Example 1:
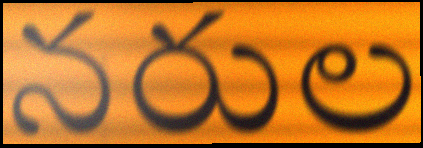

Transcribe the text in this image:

నరుల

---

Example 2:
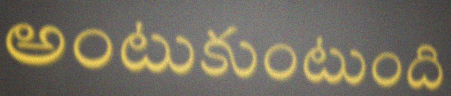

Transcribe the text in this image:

అంటుకుంటుంది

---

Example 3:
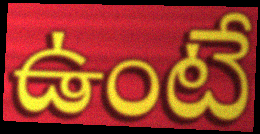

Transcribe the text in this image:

ఉంటే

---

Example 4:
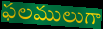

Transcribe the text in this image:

ఫలములుగా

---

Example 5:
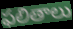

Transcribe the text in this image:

ఫలితాలు